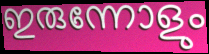
ഇരുന്നോളും